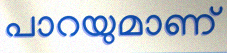
പാറയുമാണ്